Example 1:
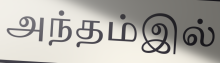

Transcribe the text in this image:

அந்தம்இல்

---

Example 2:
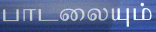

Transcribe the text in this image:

பாடலையும்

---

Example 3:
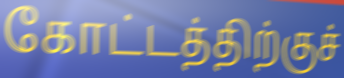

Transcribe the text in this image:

கோட்டத்திற்குச்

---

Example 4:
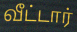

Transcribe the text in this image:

வீட்டார்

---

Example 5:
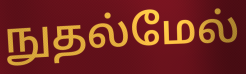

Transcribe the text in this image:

நுதல்மேல்